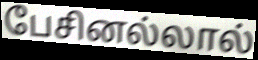
பேசினல்லால்